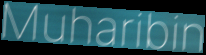
Muharibin